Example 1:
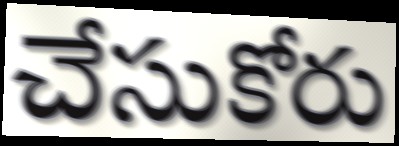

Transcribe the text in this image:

చేసుకోరు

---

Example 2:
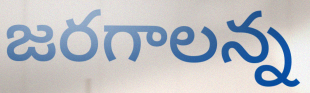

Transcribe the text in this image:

జరగాలన్న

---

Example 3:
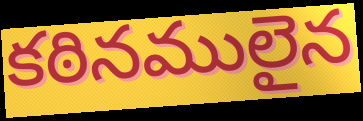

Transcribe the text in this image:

కఠినములైన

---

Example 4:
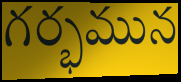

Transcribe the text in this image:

గర్భమున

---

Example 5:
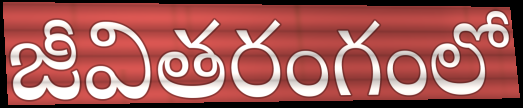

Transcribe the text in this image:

జీవితరంగంలో